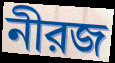
নীরজ